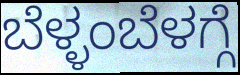
ಬೆಳ್ಳಂಬೆಳಗ್ಗೆ